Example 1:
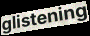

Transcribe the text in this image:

glistening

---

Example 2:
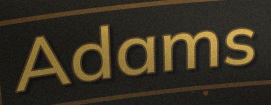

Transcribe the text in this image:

Adams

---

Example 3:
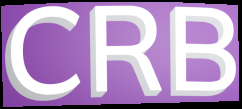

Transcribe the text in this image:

CRB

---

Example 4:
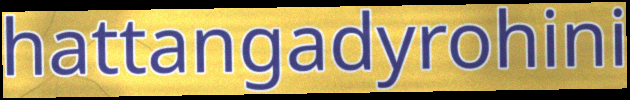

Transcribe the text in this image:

hattangadyrohini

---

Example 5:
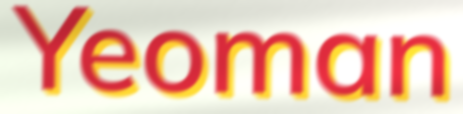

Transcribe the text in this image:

Yeoman